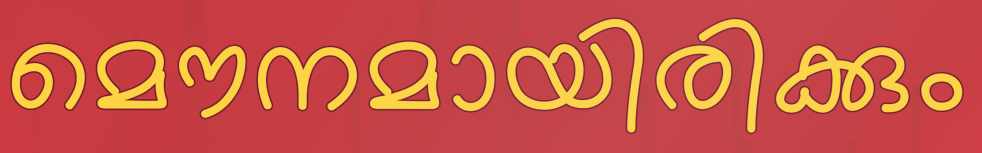
മൌനമായിരിക്കും